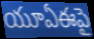
యూఏఈపై